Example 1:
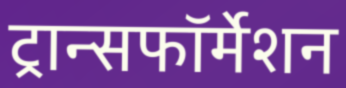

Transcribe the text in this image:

ट्रान्सफॉर्मेशन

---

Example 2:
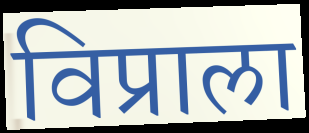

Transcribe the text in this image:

विप्राला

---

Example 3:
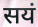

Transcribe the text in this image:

सयं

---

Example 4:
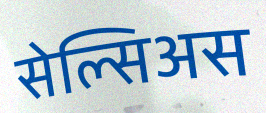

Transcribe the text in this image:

सेल्सिअस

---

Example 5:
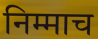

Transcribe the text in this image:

निम्माच